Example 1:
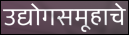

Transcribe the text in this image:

उद्योगसमूहाचे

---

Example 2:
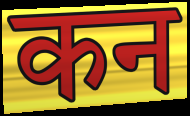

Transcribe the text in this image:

कन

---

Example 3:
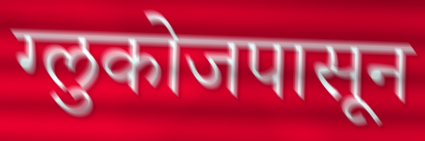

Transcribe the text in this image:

ग्लुकोजपासून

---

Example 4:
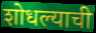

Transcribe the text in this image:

शोधल्याची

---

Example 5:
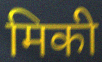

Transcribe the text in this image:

मिकी